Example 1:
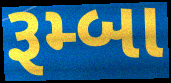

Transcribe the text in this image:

રૂમ્બા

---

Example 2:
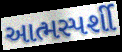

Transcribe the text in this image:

આત્મસ્પર્શી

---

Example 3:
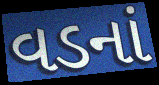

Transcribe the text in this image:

વડનાં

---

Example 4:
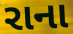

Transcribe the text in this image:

રાના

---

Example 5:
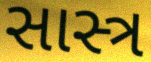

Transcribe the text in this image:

સાસ્ત્ર